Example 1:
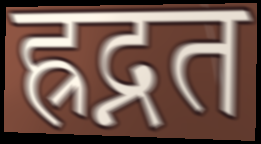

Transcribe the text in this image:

ह्रद्नत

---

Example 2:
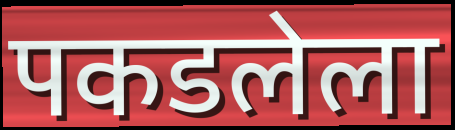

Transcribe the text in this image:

पकडलेला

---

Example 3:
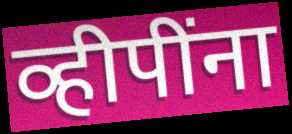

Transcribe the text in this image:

व्हीपींना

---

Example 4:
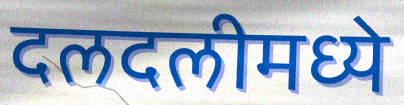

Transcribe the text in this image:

दलदलीमध्ये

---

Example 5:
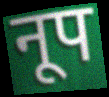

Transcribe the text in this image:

नूप